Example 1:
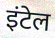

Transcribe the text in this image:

इंटेल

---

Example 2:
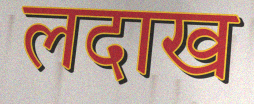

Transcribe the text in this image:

लदाख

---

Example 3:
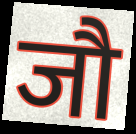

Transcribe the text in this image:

जौ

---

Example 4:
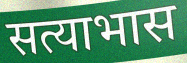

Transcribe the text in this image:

सत्याभास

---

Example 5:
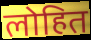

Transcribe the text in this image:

लोहित